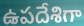
ఉపదేశిగా